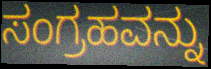
ಸಂಗ್ರಹವನ್ನು